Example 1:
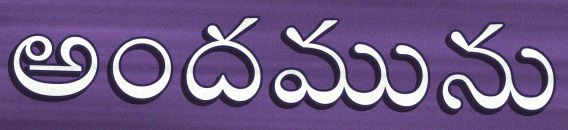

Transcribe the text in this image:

అందమును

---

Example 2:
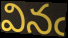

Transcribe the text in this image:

వినఁ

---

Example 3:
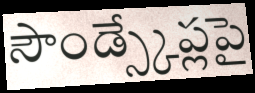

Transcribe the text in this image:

సౌండ్స్కేప్లపై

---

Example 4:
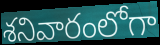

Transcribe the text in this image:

శనివారంలోగా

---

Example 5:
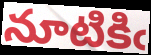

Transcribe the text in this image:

నూటికిఁ